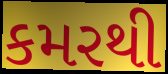
કમરથી